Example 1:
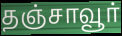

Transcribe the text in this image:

தஞ்சாவூர்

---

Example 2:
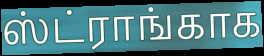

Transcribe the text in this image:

ஸ்ட்ராங்காக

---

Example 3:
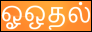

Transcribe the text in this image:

ஓஒதல்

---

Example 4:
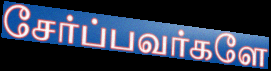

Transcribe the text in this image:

சேர்ப்பவர்களே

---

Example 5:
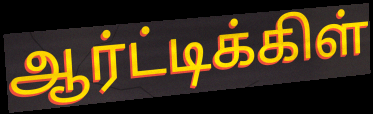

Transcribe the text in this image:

ஆர்ட்டிக்கிள்